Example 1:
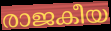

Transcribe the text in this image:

രാജകീയ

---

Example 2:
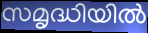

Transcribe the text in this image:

സമൃദ്ധിയിൽ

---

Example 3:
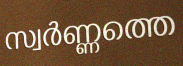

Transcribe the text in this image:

സ്വർണ്ണത്തെ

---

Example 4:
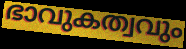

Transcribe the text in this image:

ഭാവുകത്വവും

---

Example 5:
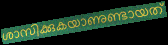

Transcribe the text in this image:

ശാസിക്കുകയാണുണ്ടായത്